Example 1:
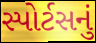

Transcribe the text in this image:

સ્પોર્ટસનું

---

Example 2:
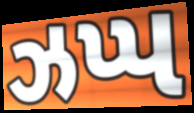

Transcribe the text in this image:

ઝપ્પ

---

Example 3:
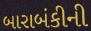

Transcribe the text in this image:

બારાબંકીની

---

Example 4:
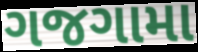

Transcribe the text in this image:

ગજગામા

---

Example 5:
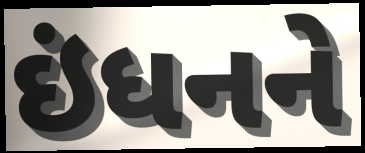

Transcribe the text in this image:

ઇંધનને